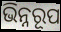
ଭିନ୍ନରୂପ